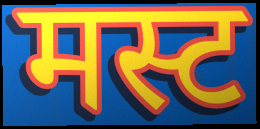
मस्ट